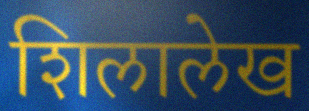
शिलालेख